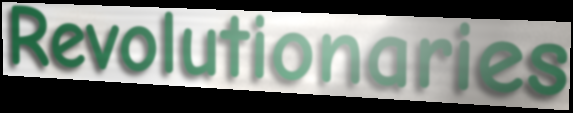
Revolutionaries